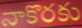
నాకొరకు